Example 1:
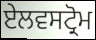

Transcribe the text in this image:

ਏਲਵਸਟ੍ਰੋਮ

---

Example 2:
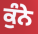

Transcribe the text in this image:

ਕੁੰਨੇ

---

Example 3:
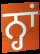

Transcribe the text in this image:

ਨ੍ਹਾਂ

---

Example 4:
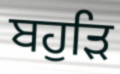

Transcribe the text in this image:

ਬਹੁੜਿ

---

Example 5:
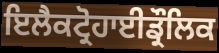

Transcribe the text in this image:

ਇਲੈਕਟ੍ਰੋਹਾਈਡ੍ਰੌਲਿਕ